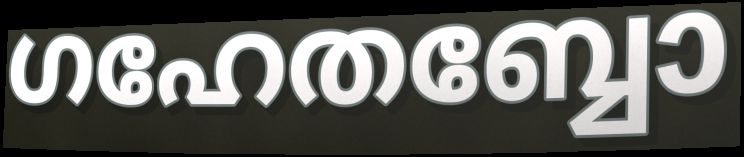
ഗഹേതബ്ബോ